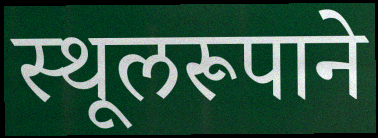
स्थूलरूपाने